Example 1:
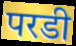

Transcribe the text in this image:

परडी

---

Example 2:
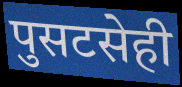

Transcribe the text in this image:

पुसटसेही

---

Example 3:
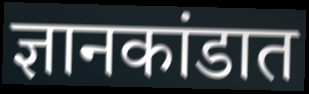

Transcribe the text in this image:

ज्ञानकांडात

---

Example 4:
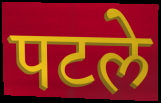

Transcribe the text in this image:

पटले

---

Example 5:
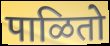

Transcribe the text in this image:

पाळितो